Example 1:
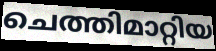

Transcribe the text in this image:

ചെത്തിമാറ്റിയ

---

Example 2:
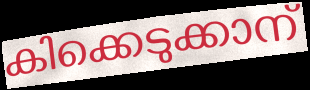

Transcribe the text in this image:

കിക്കെടുക്കാന്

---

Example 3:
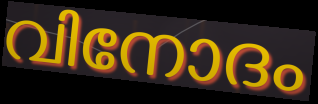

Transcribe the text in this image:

വിനോദം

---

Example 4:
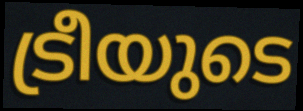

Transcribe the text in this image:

ട്രീയുടെ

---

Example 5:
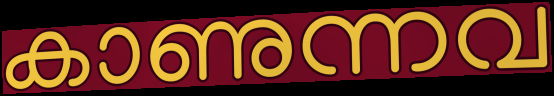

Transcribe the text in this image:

കാണുന്നവ